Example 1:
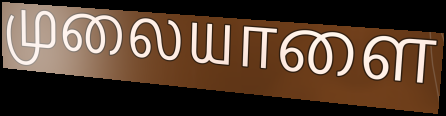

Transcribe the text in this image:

முலையாளை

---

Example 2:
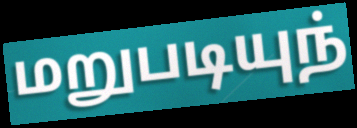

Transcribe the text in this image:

மறுபடியுந்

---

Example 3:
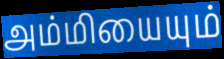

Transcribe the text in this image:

அம்மியையும்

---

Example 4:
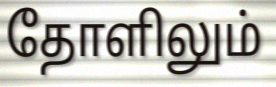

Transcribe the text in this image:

தோளிலும்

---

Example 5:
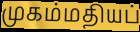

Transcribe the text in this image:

முகம்மதியப்